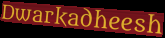
Dwarkadheesh